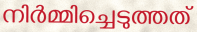
നിർമ്മിച്ചെടുത്തത്